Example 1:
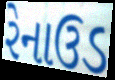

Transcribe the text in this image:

રેનાઉડ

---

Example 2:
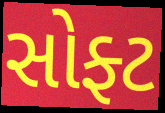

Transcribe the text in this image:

સોફ્ટ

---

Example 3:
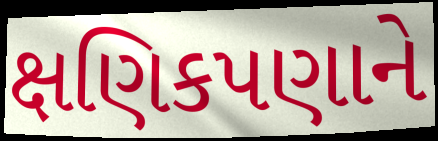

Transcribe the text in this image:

ક્ષણિકપણાને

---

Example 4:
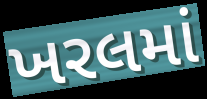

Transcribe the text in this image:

ખરલમાં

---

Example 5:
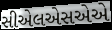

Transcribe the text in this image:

સીએલએસએએ